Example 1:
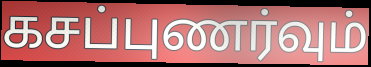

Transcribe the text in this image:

கசப்புணர்வும்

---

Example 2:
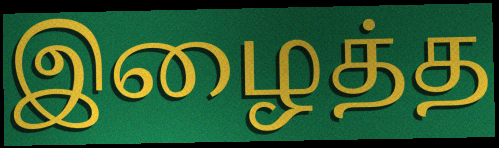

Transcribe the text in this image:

இழைத்த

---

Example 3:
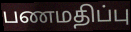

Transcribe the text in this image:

பணமதிப்பு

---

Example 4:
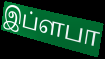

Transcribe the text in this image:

இப்ளபா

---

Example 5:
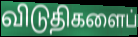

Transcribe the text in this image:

விடுதிகளைப்